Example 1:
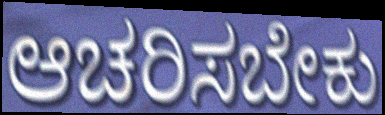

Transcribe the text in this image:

ಆಚರಿಸಬೇಕು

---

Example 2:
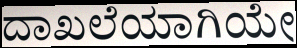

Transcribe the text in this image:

ದಾಖಲೆಯಾಗಿಯೇ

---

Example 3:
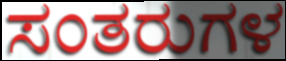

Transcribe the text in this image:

ಸಂತರುಗಳ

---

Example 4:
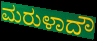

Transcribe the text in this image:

ಮರುಳಾದೌ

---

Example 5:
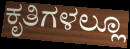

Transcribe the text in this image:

ಕೃತಿಗಳಲ್ಲೂ